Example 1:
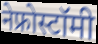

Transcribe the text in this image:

नेफ्रोस्टॉमी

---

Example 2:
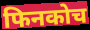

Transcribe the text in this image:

फिनकोच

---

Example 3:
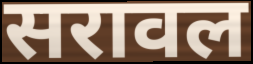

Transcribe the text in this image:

सरावल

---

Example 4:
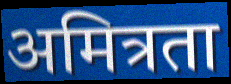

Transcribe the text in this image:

अमित्रता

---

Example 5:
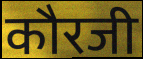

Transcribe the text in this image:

कौरजी